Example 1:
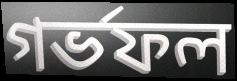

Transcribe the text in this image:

গর্ভফল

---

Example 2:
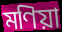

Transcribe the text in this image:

মণিয়া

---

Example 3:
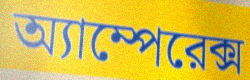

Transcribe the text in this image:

অ্যাম্পেরেক্স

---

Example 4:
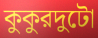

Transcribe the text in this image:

কুকুরদুটো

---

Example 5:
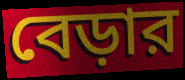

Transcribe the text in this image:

বেড়ার